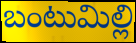
బంటుమిల్లి